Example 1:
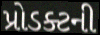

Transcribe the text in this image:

પ્રોડક્ટની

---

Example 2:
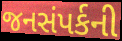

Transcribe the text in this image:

જનસંપર્કની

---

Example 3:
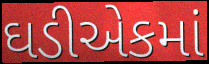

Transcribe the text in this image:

ઘડીએકમાં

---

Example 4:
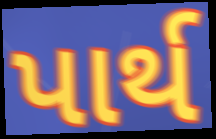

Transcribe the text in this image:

પાર્થ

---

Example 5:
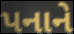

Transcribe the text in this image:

પનાને